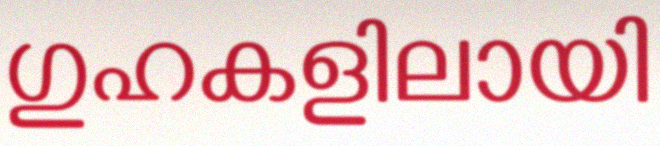
ഗുഹകളിലായി